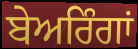
ਬੇਅਰਿੰਗਾਂ